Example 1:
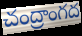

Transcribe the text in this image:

చంద్రాంగద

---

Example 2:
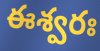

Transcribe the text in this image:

ఈశ్వరః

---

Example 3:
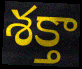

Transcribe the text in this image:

శక్తా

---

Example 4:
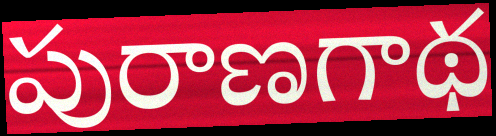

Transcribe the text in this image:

పురాణగాథ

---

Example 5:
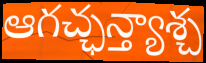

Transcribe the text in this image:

ఆగచ్ఛన్త్యాశ్చ